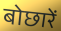
बोछारें